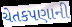
ચેતકપણાની